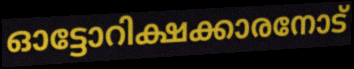
ഓട്ടോറിക്ഷക്കാരനോട്